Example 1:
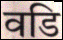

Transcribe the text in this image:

वडि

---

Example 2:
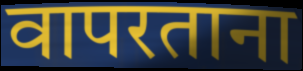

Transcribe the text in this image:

वापरताना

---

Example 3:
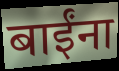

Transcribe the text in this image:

बाईंना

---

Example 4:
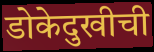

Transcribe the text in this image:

डोकेदुखीची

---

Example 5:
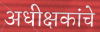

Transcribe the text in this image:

अधीक्षकांचे